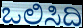
ಒಲಿಸಿದಿ